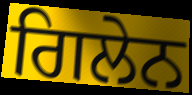
ਗਿਲੇਨ